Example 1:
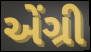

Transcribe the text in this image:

એંગ્રી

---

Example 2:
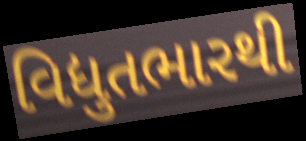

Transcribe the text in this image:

વિદ્યુતભારથી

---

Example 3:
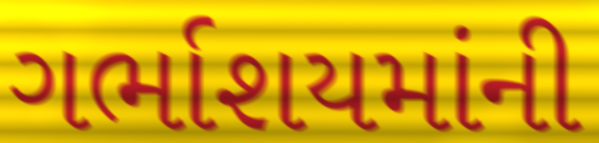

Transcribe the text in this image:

ગર્ભાશયમાંની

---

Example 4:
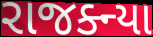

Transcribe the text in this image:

રાજક્ન્યા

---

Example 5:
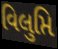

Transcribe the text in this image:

વિલુપ્તિ